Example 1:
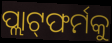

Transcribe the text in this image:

ପ୍ଲାଟ୍‌ଫର୍ମକୁ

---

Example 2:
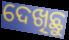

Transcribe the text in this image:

ଦେଖିଛୁ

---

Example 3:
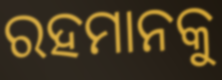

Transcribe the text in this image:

ରହମାନକୁ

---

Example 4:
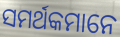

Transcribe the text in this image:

ସମର୍ଥକମାନେ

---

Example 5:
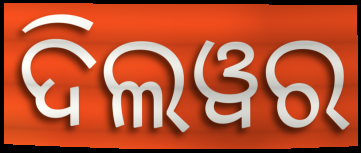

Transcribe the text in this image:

ଦିଲୱର